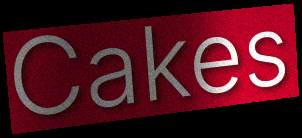
Cakes